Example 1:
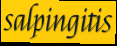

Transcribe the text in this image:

salpingitis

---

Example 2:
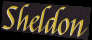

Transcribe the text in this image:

Sheldon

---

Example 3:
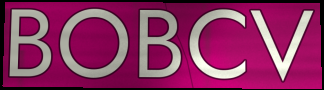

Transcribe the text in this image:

BOBCV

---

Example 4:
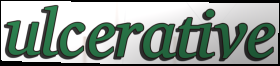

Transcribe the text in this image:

ulcerative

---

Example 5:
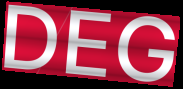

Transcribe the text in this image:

DEG